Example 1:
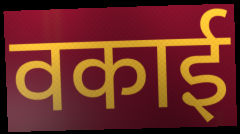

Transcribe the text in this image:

वकाई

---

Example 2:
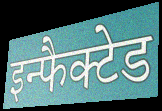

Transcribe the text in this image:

इन्फैक्टेड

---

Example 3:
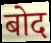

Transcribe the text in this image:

बोद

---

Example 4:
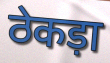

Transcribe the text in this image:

ठेकड़ा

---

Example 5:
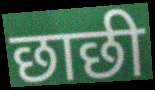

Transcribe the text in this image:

छाछी